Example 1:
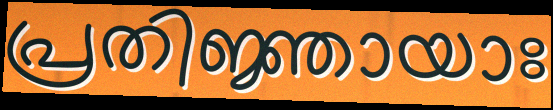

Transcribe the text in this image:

പ്രതിജ്ഞായാഃ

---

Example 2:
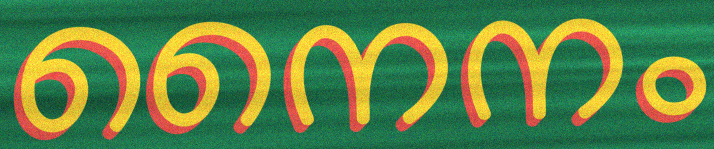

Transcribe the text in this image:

നൈനം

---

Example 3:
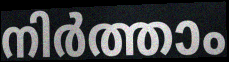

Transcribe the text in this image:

നിർത്താം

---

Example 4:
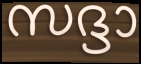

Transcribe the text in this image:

സദ്ദാ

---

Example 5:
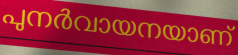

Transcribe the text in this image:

പുനർവായനയാണ്